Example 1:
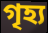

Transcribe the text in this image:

গৃহ্য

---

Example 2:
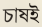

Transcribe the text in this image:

চাষই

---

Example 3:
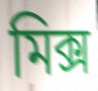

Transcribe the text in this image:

মিক্স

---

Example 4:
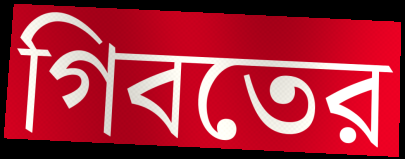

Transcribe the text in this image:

গিবতের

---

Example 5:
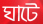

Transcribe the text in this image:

ঘাটে